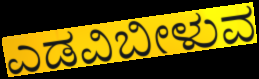
ಎಡವಿಬೀಳುವ